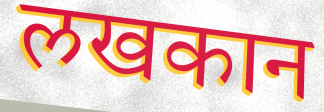
लखकान